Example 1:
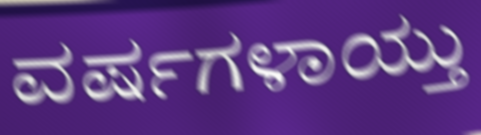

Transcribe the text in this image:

ವರ್ಷಗಳಾಯ್ತು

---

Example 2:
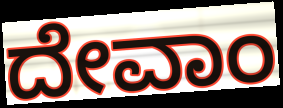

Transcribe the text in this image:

ದೇವಾಂ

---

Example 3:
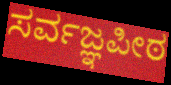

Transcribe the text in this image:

ಸರ್ವಜ್ಞಪೀಠ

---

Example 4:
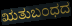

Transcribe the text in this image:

ಋತುಬಂಧದ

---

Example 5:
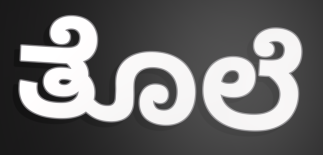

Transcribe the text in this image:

ತೊಲೆ